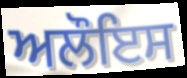
ਅਲੌਇਸ